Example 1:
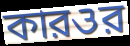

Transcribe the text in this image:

কারওর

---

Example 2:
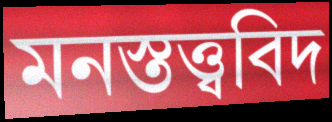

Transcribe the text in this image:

মনস্তত্ত্ববিদ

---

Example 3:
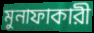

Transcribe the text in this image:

মুনাফাকারী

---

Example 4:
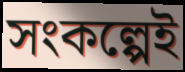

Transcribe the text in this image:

সংকল্পেই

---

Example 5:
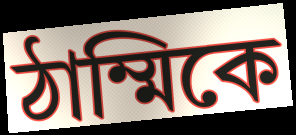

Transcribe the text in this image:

ঠাম্মিকে